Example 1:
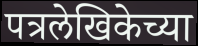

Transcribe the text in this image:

पत्रलेखिकेच्या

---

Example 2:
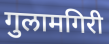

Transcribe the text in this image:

गुलामगिरी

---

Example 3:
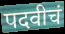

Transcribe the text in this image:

पदवीचं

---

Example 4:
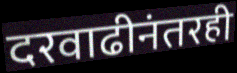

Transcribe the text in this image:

दरवाढीनंतरही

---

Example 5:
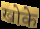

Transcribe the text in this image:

खोके